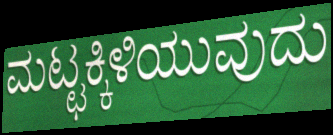
ಮಟ್ಟಕ್ಕಿಳಿಯುವುದು